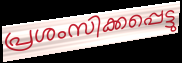
പ്രശംസിക്കപ്പെട്ടു